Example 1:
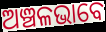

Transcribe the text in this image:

ଅଞ୍ଚଳଭାବେ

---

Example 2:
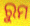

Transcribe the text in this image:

ରୁମ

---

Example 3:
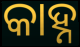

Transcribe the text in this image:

କାହ୍ନ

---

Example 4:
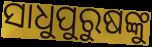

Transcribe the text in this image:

ସାଧୁପୁରୁଷଙ୍କୁ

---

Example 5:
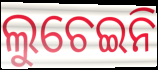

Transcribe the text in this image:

ଲୁଚେଇନି